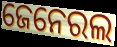
ଜେନେରଲ